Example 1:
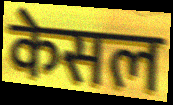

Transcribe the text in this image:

केसल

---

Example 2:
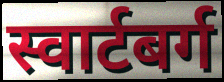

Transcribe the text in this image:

स्वार्टबर्ग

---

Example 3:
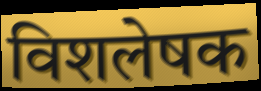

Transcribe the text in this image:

विशलेषक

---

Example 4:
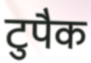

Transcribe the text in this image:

टुपैक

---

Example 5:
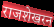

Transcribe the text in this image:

राजशेखरन